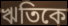
ঋতিকে